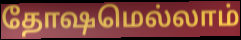
தோஷமெல்லாம்